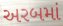
અરબમાં